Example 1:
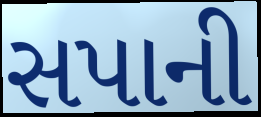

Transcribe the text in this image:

સપાની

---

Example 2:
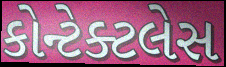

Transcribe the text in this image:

કોન્ટેક્ટલેસ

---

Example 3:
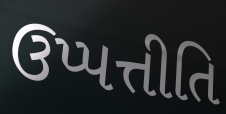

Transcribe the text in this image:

ઉપ્પત્તીતિ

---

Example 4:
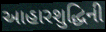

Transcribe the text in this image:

આહારશુદ્ધિની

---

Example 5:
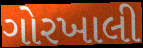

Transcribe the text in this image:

ગોરખાલી